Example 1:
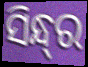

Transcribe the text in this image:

ସିନ୍ଧ୍‌ର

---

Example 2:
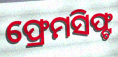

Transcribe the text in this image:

ଫ୍ରେମସିଫ୍ଟ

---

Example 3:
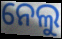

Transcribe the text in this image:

ନେଲୁ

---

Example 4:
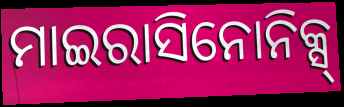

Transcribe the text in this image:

ମାଇରାସିନୋନିକ୍ସ୍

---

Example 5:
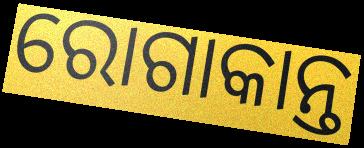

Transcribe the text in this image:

ରୋଗାକାନ୍ତ